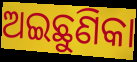
ଅଇଛୁଣିକା